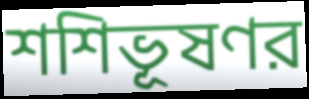
শশিভূষণর